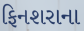
ફિનશરાના